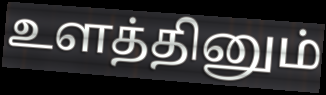
உளத்தினும்